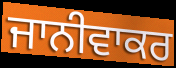
ਜਾਨੀਵਾਕਰ